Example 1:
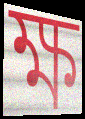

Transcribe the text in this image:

ক্ষ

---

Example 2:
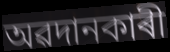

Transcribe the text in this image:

অৱদানকাৰী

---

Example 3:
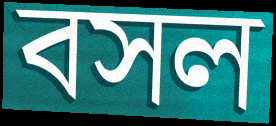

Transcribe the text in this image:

বসল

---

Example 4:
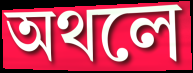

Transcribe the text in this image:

অথলে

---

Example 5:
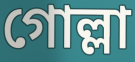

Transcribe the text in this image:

গোল্লা